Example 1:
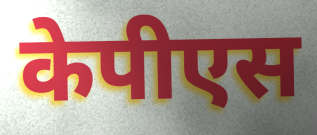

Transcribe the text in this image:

केपीएस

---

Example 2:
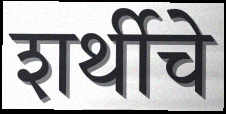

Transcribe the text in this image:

शर्थीचे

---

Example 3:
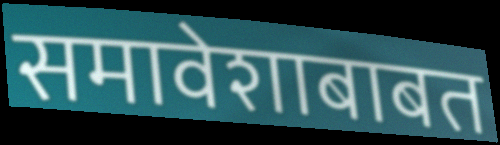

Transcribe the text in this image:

समावेशाबाबत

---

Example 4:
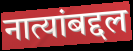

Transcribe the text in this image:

नात्यांबद्दल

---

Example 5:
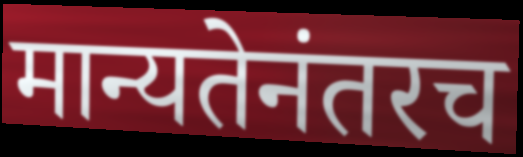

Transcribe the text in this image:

मान्यतेनंतरच